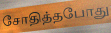
சோதித்தபோது